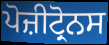
ਪੋਜ਼ੀਟ੍ਰੋਨਸ